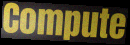
Compute